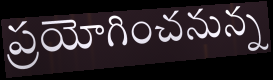
ప్రయోగించనున్న